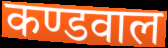
कण्डवाल